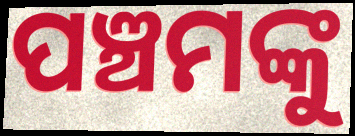
ପଞ୍ଚମଙ୍କୁ